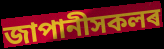
জাপানীসকলৰ